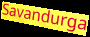
Savandurga